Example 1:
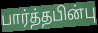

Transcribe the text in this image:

பார்த்தபின்பு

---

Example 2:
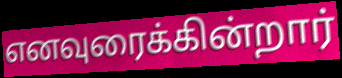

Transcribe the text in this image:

எனவுரைக்கின்றார்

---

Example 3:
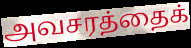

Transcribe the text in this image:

அவசரத்தைக்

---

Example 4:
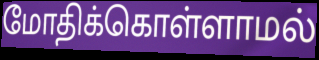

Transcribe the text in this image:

மோதிக்கொள்ளாமல்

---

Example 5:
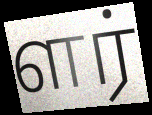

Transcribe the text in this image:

ளர்